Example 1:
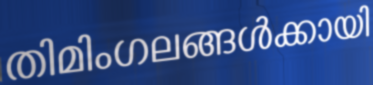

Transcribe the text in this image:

തിമിംഗലങ്ങൾക്കായി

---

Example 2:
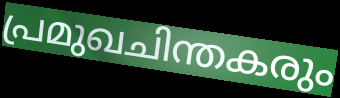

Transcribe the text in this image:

പ്രമുഖചിന്തകരും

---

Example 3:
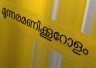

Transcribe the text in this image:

മൂന്നരമണിക്കൂറോളം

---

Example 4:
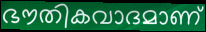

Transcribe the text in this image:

ഭൗതികവാദമാണ്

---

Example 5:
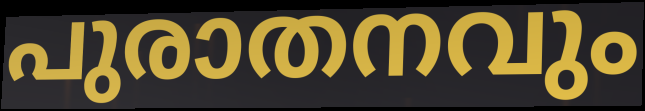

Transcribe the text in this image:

പുരാതനവും